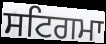
ਸਟਿਗਮਾ